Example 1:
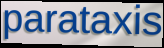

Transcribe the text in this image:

parataxis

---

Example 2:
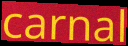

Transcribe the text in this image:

carnal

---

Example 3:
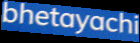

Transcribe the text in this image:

bhetayachi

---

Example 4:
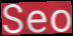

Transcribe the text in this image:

Seo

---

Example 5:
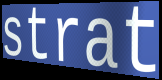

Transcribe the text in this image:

strat